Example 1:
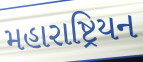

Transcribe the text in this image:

મહારાષ્ટ્રિયન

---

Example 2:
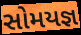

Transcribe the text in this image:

સોમયજ્ઞ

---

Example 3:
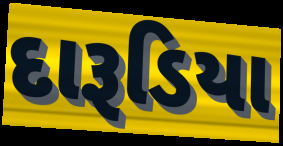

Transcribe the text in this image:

દારૂડિયા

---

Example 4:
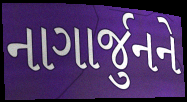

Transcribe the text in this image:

નાગાર્જુનને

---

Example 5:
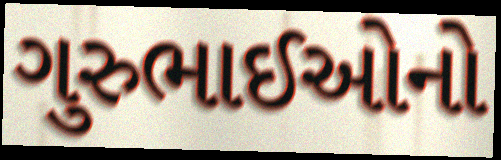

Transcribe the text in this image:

ગુરુભાઈઓનો